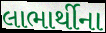
લાભાર્થીના